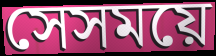
সেসময়ে